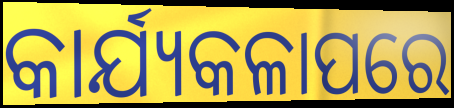
କାର୍ଯ୍ୟକଳାପରେ